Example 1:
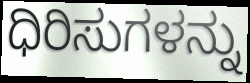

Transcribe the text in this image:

ಧಿರಿಸುಗಳನ್ನು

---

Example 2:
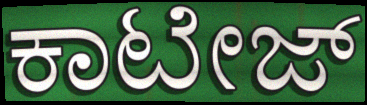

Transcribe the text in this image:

ಕಾಟೇಜ್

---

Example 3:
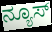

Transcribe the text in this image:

ನ್ಯೂಸ್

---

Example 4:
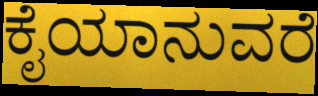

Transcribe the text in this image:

ಕೈಯಾನುವರೆ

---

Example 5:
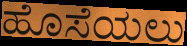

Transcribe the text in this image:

ಹೊಸೆಯಲು